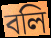
বলি